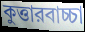
কুত্তারবাচ্চা